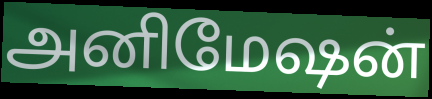
அனிமேஷன்